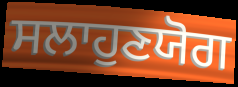
ਸਲਾਹੁਣਯੋਗ